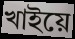
খাইয়ে